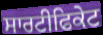
ਸਾਰਟੀਫਿਕੇਟ